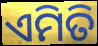
ଏମିତି